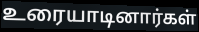
உரையாடினார்கள்